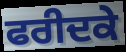
ਫਰੀਦਕੇ